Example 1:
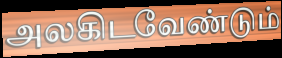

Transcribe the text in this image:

அலகிடவேண்டும்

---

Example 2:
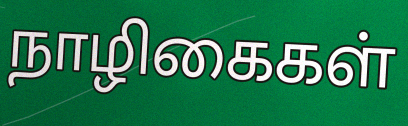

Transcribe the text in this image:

நாழிகைகள்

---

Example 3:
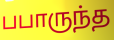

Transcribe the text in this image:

பபாருந்த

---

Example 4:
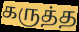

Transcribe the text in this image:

கருத்த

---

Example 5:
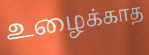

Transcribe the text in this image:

உழைக்காத